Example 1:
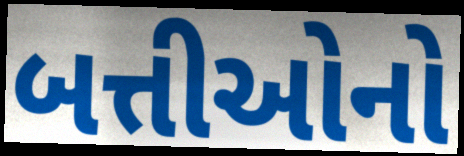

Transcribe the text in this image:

બત્તીઓનો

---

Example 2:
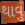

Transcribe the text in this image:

થાવું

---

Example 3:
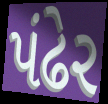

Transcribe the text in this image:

પંઢેર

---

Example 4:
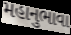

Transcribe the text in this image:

મહાનુભાવા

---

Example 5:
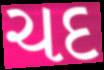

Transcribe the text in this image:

ચદ